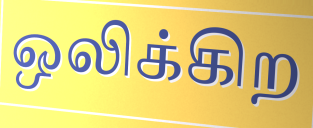
ஒலிக்கிற